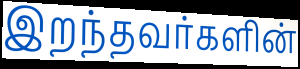
இறந்தவர்களின்